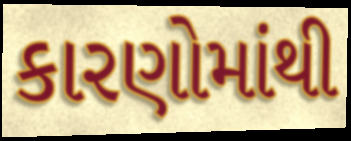
કારણોમાંથી